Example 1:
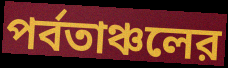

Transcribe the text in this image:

পর্বতাঞ্চলের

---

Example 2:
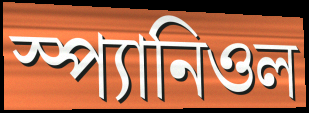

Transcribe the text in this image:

স্প্যানিওল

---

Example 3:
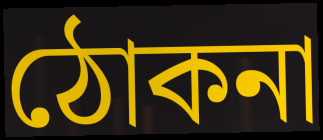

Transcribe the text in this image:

ঠোকনা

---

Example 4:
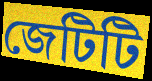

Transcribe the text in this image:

জেটিটি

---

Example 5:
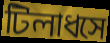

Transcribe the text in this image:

টিলাধসে